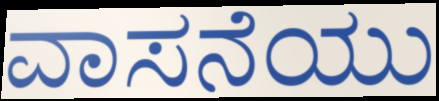
ವಾಸನೆಯು